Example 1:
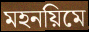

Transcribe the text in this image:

মহনয়িমে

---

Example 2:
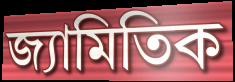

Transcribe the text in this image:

জ্যামিতিক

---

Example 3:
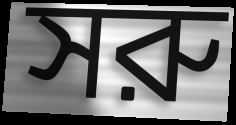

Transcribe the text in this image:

সরু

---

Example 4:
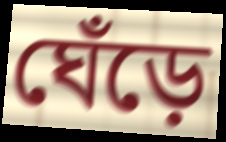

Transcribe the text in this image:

ঘেঁড়ে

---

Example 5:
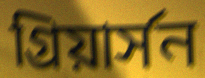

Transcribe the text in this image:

গ্রিয়ার্সন